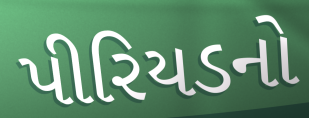
પીરિયડનો